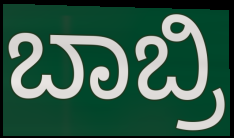
ಬಾಬ್ರಿ